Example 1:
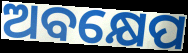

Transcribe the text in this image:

ଅବକ୍ଷେପ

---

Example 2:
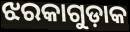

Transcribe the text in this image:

ଝରକାଗୁଡ଼ାକ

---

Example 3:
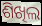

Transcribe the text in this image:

ଶିଖିଲ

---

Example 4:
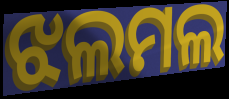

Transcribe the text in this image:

ଝଲମଲ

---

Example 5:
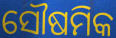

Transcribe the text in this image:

ସୌଷମିକ